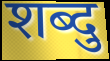
शब्दु